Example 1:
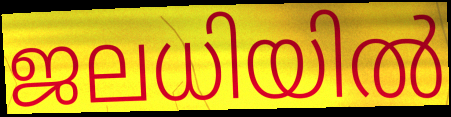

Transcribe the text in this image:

ജലധിയിൽ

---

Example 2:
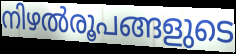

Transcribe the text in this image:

നിഴൽരൂപങ്ങളുടെ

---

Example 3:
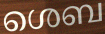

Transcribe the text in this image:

ശെബ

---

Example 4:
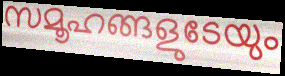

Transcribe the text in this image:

സമൂഹങ്ങളുടേയും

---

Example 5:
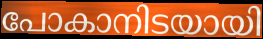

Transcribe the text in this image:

പോകാനിടയായി